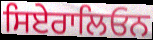
ਸਿਏਰਾਲਿਓਨ